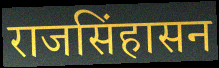
राजसिंहासन